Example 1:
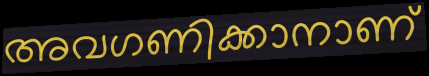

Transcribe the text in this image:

അവഗണിക്കാനാണ്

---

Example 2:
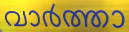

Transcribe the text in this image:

വാർത്താ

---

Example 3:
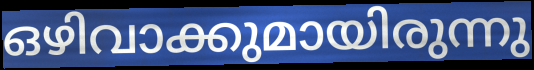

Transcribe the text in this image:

ഒഴിവാക്കുമായിരുന്നു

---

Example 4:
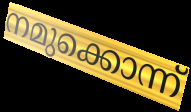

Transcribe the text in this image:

നമുക്കൊന്ന്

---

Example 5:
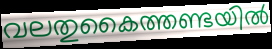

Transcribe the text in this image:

വലതുകൈത്തണ്ടയിൽ